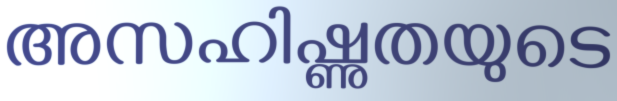
അസഹിഷ്ണുതയുടെ